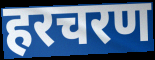
हरचरण